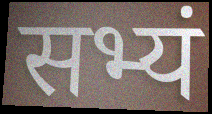
सभ्यं